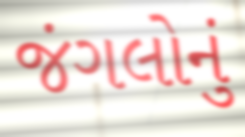
જંગલોનું